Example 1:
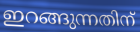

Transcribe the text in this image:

ഇറങ്ങുന്നതിന്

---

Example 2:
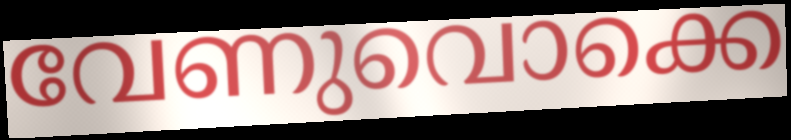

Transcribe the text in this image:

വേണുവൊക്കെ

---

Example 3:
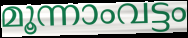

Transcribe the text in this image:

മൂന്നാംവട്ടം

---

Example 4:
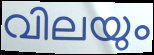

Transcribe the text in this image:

വിലയും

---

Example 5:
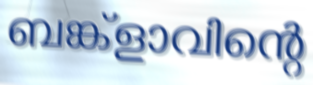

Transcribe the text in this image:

ബങ്ക്ളാവിന്റെ